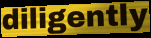
diligently